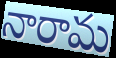
నారామ